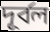
দূৰ্বল